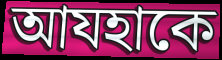
আযহাকে